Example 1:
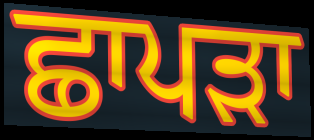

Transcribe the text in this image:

ਛਾਪੜਾ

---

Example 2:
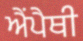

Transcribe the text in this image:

ਐਂਪੈਥੀ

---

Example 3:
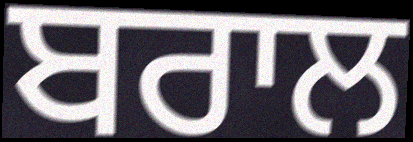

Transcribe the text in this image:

ਬਰਾਲ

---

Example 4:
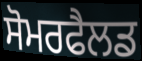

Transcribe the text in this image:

ਸੋਮਰਫੈਲਡ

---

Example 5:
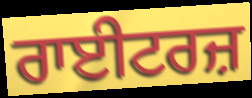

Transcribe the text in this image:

ਰਾਈਟਰਜ਼